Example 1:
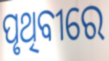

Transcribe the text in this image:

ପୃଥିବୀରେ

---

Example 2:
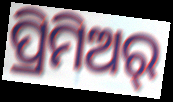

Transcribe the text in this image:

ପ୍ରିମିଅର୍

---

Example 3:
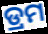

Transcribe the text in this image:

ଡ୍ରମ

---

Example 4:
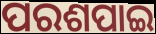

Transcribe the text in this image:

ପରଶପାଇ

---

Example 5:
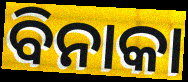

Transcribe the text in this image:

ବିନାକା